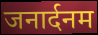
जनार्दनम